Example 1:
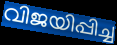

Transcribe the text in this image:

വിജയിപ്പിച്ച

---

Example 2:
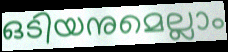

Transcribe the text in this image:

ഒടിയനുമെല്ലാം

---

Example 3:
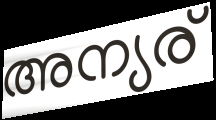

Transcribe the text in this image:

അന്യര്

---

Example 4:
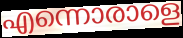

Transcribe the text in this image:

എന്നൊരാളെ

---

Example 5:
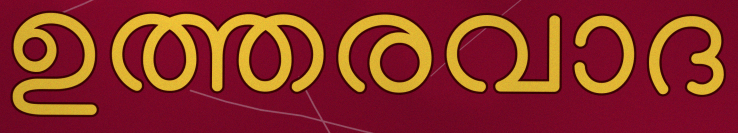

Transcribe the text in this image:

ഉത്തരവാദ